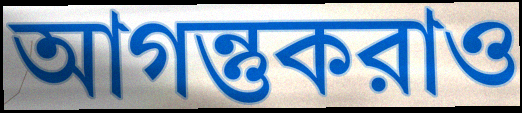
আগন্তুকরাও